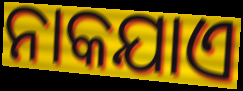
ନାକଯାଏ